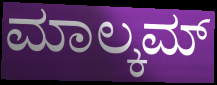
ಮಾಲ್ಕಮ್